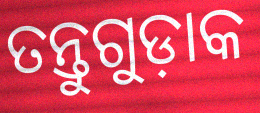
ତନ୍ତୁଗୁଡ଼ାକ